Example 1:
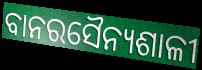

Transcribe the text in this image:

ବାନରସୈନ୍ୟଶାଳୀ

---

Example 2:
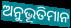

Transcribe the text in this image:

ଅନୁଭୂତିମାନ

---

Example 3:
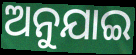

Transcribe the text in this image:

ଅନୁଯାଇ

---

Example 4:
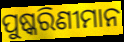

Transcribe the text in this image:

ପୁଷ୍କରିଣୀମାନ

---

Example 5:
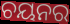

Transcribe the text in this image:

ଚୟନର